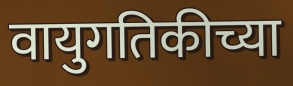
वायुगतिकीच्या